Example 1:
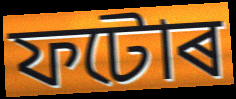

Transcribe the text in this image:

ফটোৰ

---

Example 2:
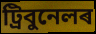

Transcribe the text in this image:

ট্ৰিবুনেলৰ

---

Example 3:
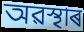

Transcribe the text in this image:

অৱস্থাৰ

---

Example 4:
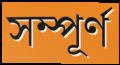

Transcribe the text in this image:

সম্পূৰ্ণ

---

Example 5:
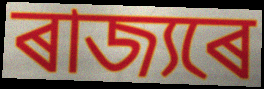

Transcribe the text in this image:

ৰাজ্যৰে